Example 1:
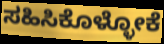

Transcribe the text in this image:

ಸಹಿಸಿಕೊಳ್ಳೋಕೆ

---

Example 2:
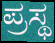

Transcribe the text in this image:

ಪ್ರಸ್ಥ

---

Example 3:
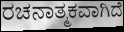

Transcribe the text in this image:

ರಚನಾತ್ಮಕವಾಗಿದೆ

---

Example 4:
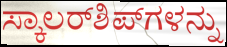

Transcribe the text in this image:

ಸ್ಕಾಲರ್‌ಶಿಪ್‌ಗಳನ್ನು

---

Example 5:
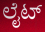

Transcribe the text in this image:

ಲೈಟ್